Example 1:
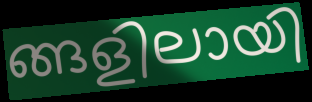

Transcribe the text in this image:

ങ്ങളിലായി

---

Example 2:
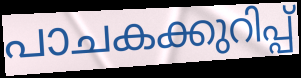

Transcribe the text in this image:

പാചകക്കുറിപ്പ്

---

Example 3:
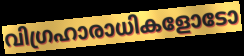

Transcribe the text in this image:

വിഗ്രഹാരാധികളോടോ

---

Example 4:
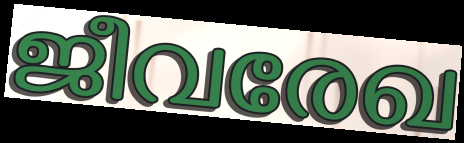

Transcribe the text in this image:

ജീവരേഖ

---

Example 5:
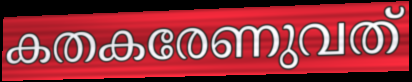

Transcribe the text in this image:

കതകരേണുവത്